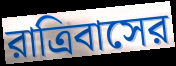
রাত্রিবাসের